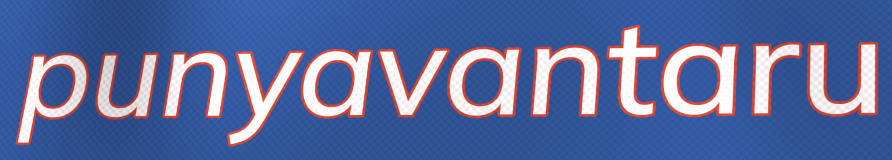
punyavantaru